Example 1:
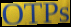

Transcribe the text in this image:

OTPs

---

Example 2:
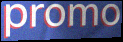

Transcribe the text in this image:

promo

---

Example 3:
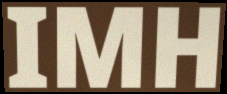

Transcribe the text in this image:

IMH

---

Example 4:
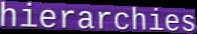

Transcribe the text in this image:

hierarchies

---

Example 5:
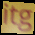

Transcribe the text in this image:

itg